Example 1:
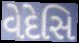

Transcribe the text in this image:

વેદેસિ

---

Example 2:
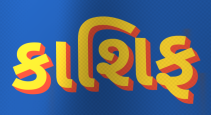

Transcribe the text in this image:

કાશિફ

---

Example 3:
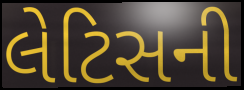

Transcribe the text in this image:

લેટિસની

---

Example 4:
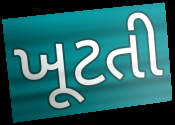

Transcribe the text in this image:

ખૂટતી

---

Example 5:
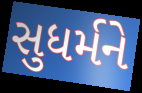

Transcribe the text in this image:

સુધર્મને